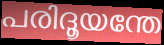
പരിദൂയന്തേ